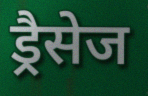
ड्रैसेज